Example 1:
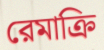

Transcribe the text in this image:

রেমাক্রি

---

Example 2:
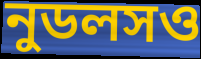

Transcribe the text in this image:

নুডলসও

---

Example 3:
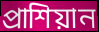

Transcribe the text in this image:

প্রাশিয়ান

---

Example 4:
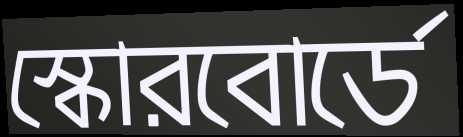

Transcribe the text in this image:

স্কোরবোর্ডে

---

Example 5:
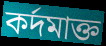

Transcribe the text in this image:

কর্দমাক্ত